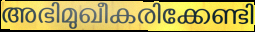
അഭിമുഖീകരിക്കേണ്ടി